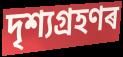
দৃশ্যগ্ৰহণৰ